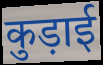
कुड़ाई